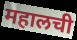
महालची